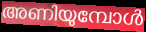
അണിയുമ്പോൾ